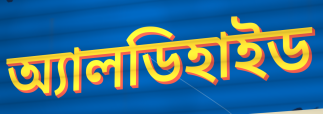
অ্যালডিহাইড